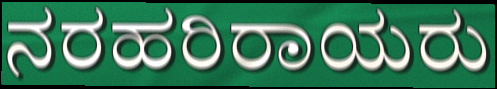
ನರಹರಿರಾಯರು